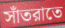
সাঁতরাতে